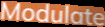
Modulate